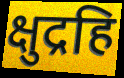
क्षुद्रहि